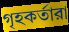
গৃহকর্তারা